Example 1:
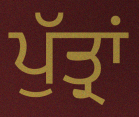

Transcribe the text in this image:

ਪੁੱਤ੍ਰਾਂ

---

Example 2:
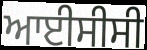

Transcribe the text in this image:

ਆਈਸੀਸੀ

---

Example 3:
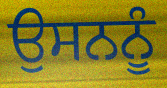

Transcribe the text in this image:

ਉਸਨਨੂੰ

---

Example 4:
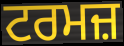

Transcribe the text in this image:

ਟਰਮਜ਼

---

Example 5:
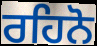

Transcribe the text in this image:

ਰਹਿਨੋ